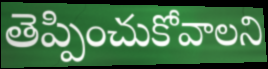
తెప్పించుకోవాలని